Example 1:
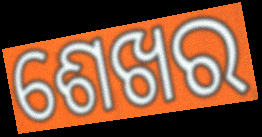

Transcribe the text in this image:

ଶେଖର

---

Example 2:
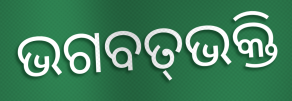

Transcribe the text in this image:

ଭଗବତ୍‌ଭକ୍ତି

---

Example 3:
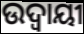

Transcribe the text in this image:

ଉଦ୍ବାୟୀ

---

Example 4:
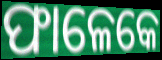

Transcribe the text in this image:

ଫାଳେକେ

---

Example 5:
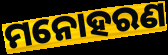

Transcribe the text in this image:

ମନୋହରଣ